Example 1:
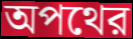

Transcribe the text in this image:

অপথের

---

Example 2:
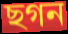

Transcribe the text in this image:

ছগন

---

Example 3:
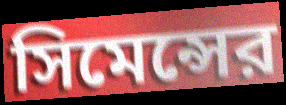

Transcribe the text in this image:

সিমেন্সের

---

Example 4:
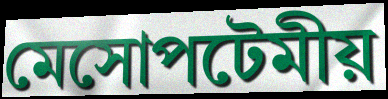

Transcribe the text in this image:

মেসোপটেমীয়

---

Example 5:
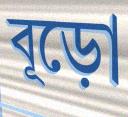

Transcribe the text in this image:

বূড়ো